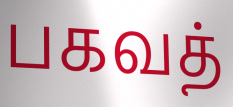
பகவத்